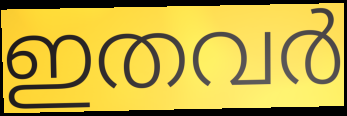
ഇതവർ